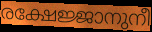
രക്ഷേജ്ജാനുനീ